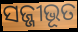
ସଜ୍ଜୀଭୂତ